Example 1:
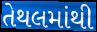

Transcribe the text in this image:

તેથલમાંથી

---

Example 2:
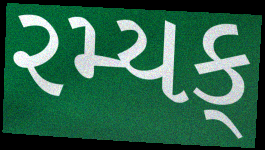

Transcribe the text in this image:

રમ્યક્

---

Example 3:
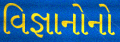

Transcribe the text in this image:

વિજ્ઞાનોનો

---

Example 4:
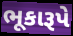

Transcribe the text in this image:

ભૂકારૂપે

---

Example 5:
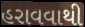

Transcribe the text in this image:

હરાવવાથી